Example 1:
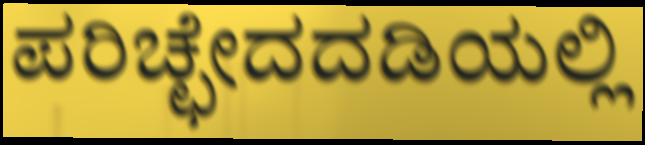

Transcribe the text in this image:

ಪರಿಚ್ಛೇದದಡಿಯಲ್ಲಿ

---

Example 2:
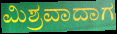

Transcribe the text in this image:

ಮಿಶ್ರವಾದಾಗ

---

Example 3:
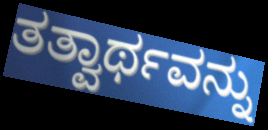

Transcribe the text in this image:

ತತ್ವಾರ್ಥವನ್ನು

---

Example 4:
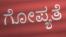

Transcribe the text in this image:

ಗೋಪ್ಯತೆ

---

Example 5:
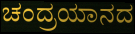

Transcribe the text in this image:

ಚಂದ್ರಯಾನದ